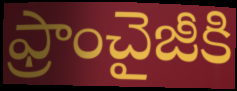
ఫ్రాంచైజీకి